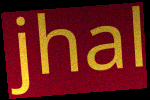
jhal